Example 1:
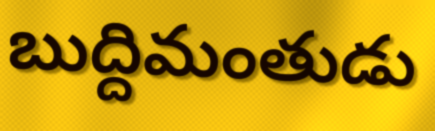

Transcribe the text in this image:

బుద్దిమంతుడు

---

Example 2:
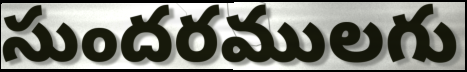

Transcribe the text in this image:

సుందరములగు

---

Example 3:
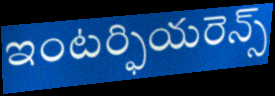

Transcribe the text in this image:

ఇంటర్ఫియరెన్స్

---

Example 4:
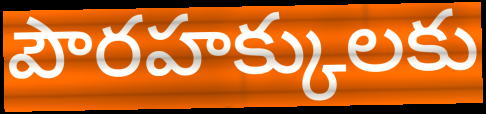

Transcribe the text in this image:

పౌరహక్కులకు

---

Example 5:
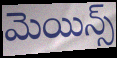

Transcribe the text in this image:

మెయిన్స్